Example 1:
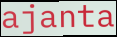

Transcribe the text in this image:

ajanta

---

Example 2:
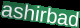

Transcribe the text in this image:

ashirbad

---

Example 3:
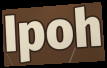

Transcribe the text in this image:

Ipoh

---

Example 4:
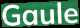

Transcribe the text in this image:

Gaule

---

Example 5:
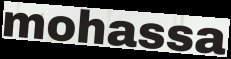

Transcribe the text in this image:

mohassa